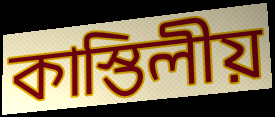
কাস্তিলীয়